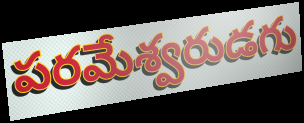
పరమేశ్వరుడగు